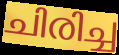
ചിരിച്ച